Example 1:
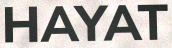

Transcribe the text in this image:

HAYAT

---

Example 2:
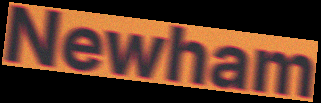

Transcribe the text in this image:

Newham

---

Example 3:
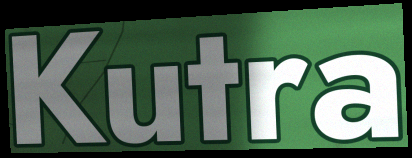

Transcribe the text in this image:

Kutra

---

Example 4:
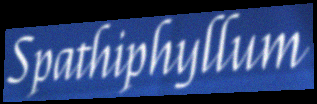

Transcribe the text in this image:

Spathiphyllum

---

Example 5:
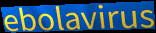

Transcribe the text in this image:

ebolavirus